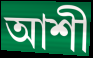
আশী